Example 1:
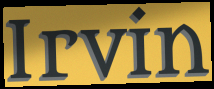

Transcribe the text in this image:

Irvin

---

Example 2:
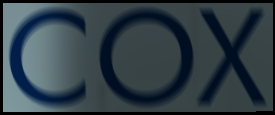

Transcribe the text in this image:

COX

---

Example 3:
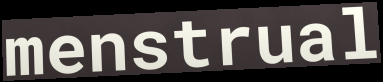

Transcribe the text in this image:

menstrual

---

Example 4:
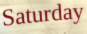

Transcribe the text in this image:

Saturday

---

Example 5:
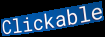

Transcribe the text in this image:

Clickable